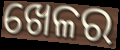
ଖେଳର